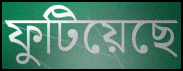
ফুটিয়েছে